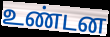
உண்டன